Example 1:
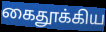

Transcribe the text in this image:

கைதூக்கிய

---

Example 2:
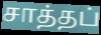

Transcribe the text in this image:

சாத்தப்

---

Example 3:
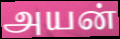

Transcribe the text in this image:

அயன்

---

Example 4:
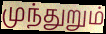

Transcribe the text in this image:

முந்துறும்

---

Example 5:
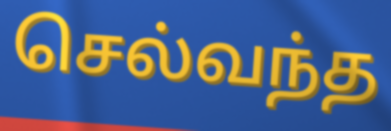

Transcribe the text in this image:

செல்வந்த